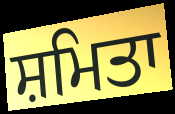
ਸ਼ਮਿਤਾ